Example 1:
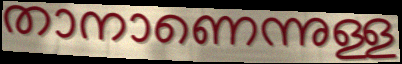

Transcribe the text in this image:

താനാണെന്നുള്ള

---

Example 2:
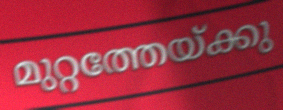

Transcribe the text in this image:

മുറ്റത്തേയ്ക്കു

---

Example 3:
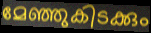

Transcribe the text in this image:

മേഞ്ഞുകിടക്കും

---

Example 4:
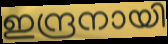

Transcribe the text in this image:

ഇന്ദ്രനായി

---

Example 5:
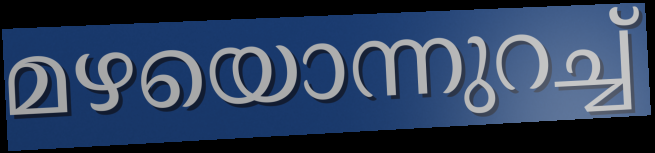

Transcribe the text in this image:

മഴയൊന്നുറച്ച്